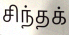
சிந்தக்